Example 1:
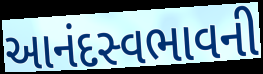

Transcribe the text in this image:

આનંદસ્વભાવની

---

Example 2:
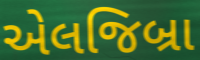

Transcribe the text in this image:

એલજિબ્રા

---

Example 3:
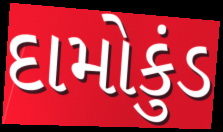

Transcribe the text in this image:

દામોકુંડ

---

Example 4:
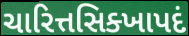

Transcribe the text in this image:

ચારિત્તસિક્ખાપદં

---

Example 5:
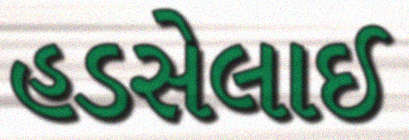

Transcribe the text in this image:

હડસેલાઈ